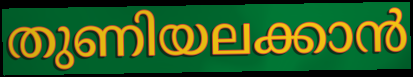
തുണിയലക്കാൻ